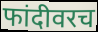
फांदीवरच